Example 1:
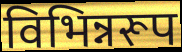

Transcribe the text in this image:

विभिन्नरूप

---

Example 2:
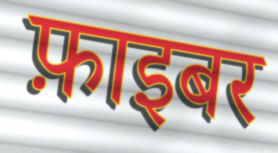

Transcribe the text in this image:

फ़ाइबर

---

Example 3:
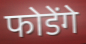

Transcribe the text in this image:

फोडेंगे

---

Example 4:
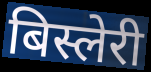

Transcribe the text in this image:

बिस्लेरी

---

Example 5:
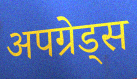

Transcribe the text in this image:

अपग्रेड्स